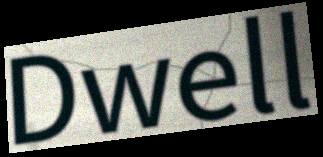
Dwell